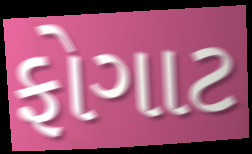
ફોગાટ